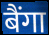
बैंगा